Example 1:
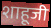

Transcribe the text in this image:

शाहूजी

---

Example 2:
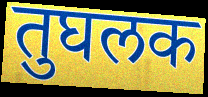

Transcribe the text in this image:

तुघलक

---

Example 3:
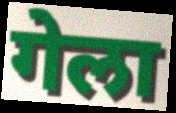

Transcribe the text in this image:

गेला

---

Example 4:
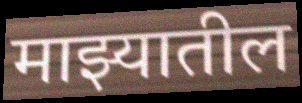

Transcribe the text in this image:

माझ्यातील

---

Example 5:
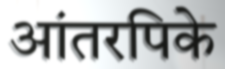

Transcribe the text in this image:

आंतरपिके